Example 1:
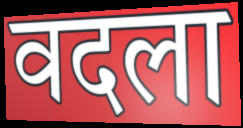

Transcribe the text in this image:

वदला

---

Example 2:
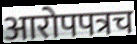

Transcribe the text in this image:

आरोपपत्रच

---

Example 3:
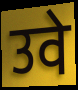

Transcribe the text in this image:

उवे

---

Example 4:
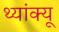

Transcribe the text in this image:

थ्यांक्यू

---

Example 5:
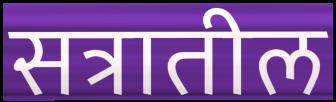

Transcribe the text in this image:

सत्रातील